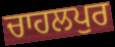
ਚਾਹਲਪੁਰ